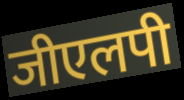
जीएलपी